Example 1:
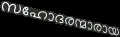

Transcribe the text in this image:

സഹോദരന്മാരായ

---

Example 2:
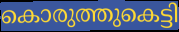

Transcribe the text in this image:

കൊരുത്തുകെട്ടി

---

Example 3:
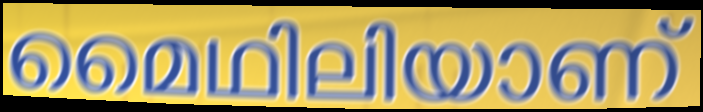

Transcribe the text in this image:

മൈഥിലിയാണ്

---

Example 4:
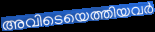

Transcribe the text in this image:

അവിടെയെത്തിയവർ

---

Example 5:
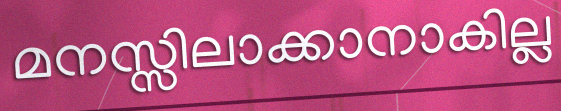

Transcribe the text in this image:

മനസ്സിലാക്കാനാകില്ല